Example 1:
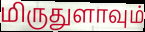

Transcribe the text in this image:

மிருதுளாவும்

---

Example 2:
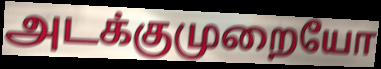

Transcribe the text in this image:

அடக்குமுறையோ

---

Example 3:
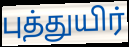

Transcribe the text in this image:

புத்துயிர்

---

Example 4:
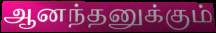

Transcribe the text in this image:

ஆனந்தனுக்கும்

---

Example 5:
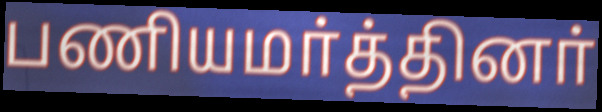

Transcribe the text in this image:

பணியமர்த்தினர்